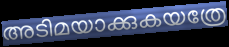
അടിമയാക്കുകയത്രേ